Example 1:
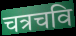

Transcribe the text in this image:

चत्रचवि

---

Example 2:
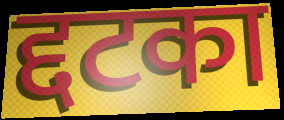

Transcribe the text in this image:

द्दटका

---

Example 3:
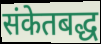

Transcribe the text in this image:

संकेतबद्ध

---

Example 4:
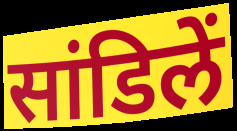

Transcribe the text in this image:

सांडिलें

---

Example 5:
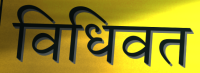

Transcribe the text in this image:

विधिवत